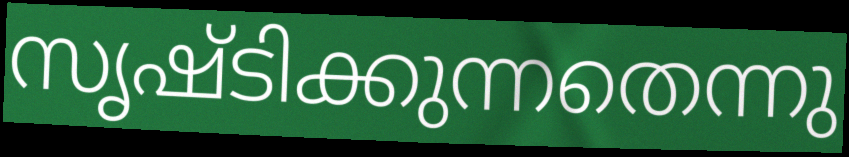
സൃഷ്ടിക്കുന്നതെന്നു